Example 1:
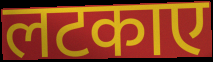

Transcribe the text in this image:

लटकाए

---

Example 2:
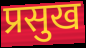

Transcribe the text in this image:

प्रसुख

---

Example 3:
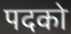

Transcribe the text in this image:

पदको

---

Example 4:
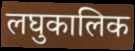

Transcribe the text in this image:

लघुकालिक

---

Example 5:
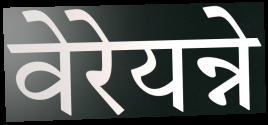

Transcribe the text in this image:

वेरेयन्ने